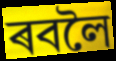
ৰবলৈ